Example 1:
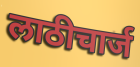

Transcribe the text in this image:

लाठीचार्ज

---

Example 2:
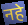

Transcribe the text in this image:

नहे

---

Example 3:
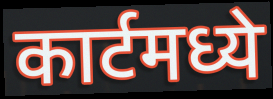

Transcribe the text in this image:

कार्टमध्ये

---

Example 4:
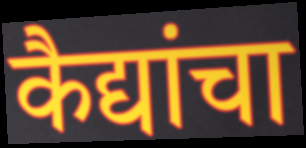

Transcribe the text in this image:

कैद्यांचा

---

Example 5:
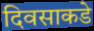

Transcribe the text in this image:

दिवसाकडे